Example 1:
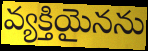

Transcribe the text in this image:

వ్యక్తియైనను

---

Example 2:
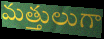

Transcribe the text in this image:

మత్తులుగా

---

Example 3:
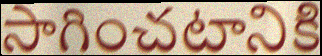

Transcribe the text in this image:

సాగించటానికి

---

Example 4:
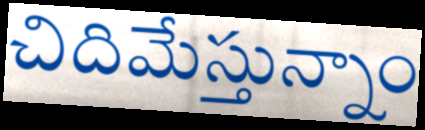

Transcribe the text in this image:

చిదిమేస్తున్నాం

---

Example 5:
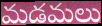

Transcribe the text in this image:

మడమలు